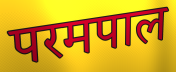
परमपाल